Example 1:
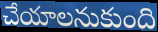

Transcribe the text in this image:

చేయాలనుకుంది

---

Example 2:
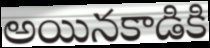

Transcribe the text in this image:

అయినకాడికి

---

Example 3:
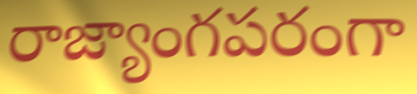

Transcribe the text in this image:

రాజ్యాంగపరంగా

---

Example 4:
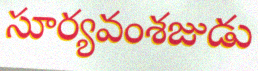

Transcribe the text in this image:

సూర్యవంశజుడు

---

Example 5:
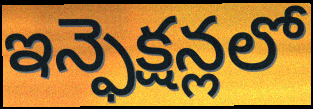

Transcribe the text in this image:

ఇన్ఫెక్షన్లలో